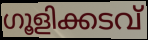
ഗൂളിക്കടവ്